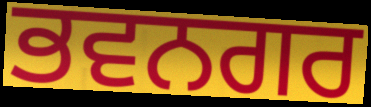
ਭਵਨਗਰ